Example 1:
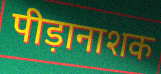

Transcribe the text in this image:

पीड़ानाशक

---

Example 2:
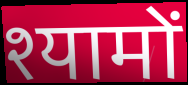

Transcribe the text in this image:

श्यामों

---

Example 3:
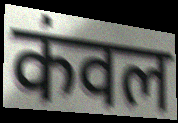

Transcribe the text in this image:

कंवल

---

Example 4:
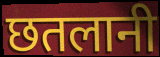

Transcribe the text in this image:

छतलानी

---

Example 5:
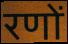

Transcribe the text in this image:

रणों